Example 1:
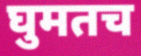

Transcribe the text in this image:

घुमतच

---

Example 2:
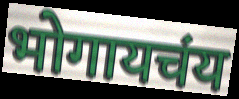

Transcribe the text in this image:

भोगायचंय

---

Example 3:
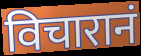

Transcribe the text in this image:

विचारानं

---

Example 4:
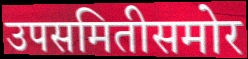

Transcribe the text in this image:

उपसमितीसमोर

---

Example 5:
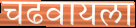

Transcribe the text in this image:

चढवायला